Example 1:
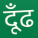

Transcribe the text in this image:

दूँढ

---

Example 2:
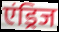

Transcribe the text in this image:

एंड्रिज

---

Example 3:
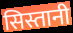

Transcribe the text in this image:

सिस्तानी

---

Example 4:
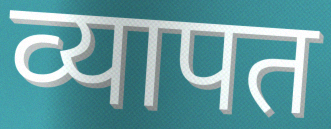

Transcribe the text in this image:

व्यापत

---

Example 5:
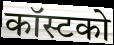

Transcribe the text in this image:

कॉस्टको